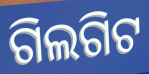
ଗିଲଗିଟ